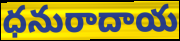
ధనురాదాయ